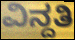
ವಿನ್ದತಿ